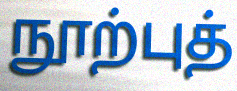
நூற்புத்